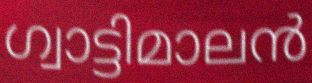
ഗ്വാട്ടിമാലൻ